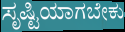
ಸೃಷ್ಟಿಯಾಗಬೇಕು